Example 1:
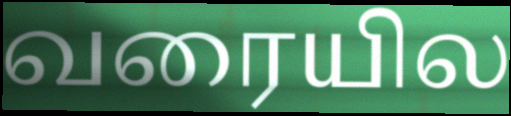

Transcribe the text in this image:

வரையில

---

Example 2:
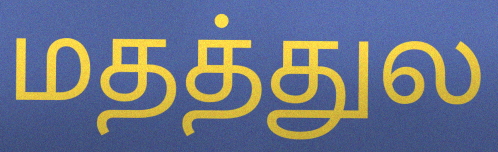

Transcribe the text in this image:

மதத்துல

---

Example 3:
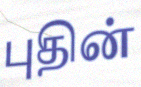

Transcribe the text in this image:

புதின்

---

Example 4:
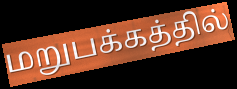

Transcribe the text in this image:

மறுபக்கத்தில்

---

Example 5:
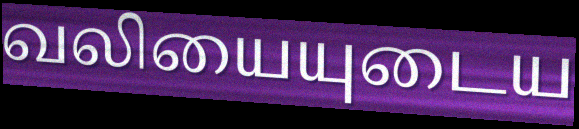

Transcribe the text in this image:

வலியையுடைய